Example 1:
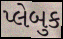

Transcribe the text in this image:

પ્લેબુક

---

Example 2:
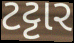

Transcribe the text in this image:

ટટ્ટાર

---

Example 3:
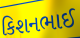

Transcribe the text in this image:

કિશનભાઈ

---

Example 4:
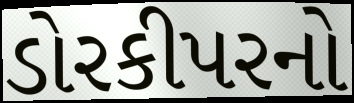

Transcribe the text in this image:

ડોરકીપરનો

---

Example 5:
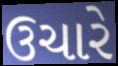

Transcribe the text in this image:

ઉચારે